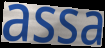
assa